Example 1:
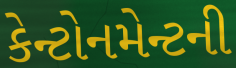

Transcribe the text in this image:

કેન્ટોનમેન્ટની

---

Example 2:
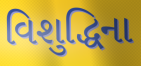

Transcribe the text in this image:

વિશુદ્ધિના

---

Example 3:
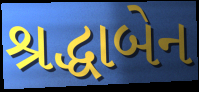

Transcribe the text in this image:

શ્રદ્ધાબેન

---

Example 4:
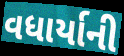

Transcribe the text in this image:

વધાર્યાની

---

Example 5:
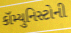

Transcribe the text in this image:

કૉમ્યુનિસ્ટોની